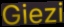
Giezi